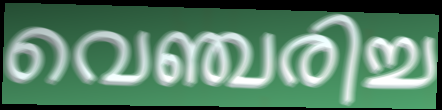
വെഞ്ചരിച്ച